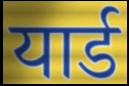
यार्ड